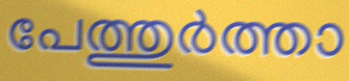
പേത്തുർത്താ